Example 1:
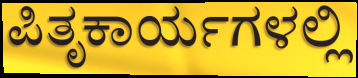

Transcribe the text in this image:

ಪಿತೃಕಾರ್ಯಗಳಲ್ಲಿ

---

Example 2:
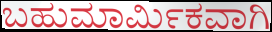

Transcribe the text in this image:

ಬಹುಮಾರ್ಮಿಕವಾಗಿ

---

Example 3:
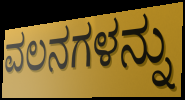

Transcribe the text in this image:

ವಲನಗಳನ್ನು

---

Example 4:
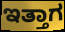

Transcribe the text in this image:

ಇತ್ತಾಗ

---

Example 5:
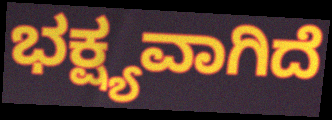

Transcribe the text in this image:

ಭಕ್ಷ್ಯವಾಗಿದೆ